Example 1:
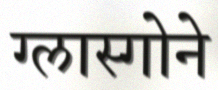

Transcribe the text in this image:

ग्लास्गोने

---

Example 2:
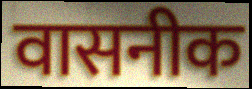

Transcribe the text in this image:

वासनीक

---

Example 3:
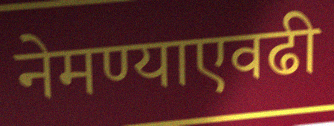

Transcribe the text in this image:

नेमण्याएवढी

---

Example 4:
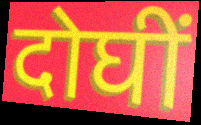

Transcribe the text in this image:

दोघीं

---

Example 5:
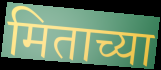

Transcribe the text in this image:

मिताच्या